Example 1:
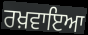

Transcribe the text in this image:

ਰਖ਼ਵਾਇਆ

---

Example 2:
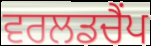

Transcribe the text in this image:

ਵਰਲਡਚੈਂਪ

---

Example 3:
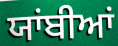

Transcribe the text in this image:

ਯਾਂਬੀਆਂ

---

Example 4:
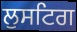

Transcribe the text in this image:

ਲੁਸਟਿਗ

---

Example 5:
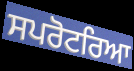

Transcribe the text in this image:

ਸਪਰੋਟਰਿਆ